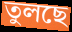
তুলছে